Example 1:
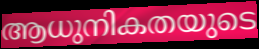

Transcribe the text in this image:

ആധുനികതയുടെ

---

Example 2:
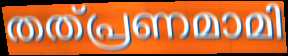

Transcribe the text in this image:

തത്പ്രണമാമി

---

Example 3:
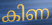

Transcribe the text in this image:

കിണ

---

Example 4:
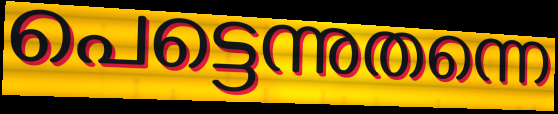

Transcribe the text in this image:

പെട്ടെന്നുതന്നെ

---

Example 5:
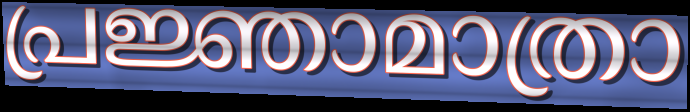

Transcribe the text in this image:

പ്രജ്ഞാമാത്രാ